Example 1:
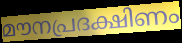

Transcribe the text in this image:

മൗനപ്രദക്ഷിണം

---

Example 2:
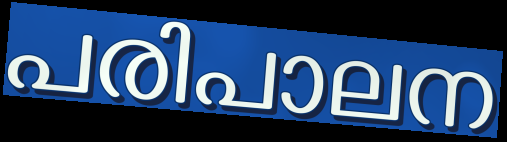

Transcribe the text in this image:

പരിപാലന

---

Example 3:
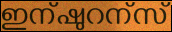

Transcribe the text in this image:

ഇന്ഷുറന്സ്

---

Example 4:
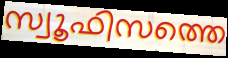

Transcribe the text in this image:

സ്വൂഫിസത്തെ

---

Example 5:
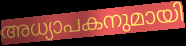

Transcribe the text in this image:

അധ്യാപകനുമായി